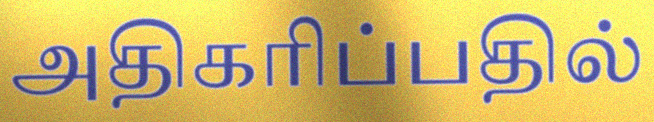
அதிகரிப்பதில்